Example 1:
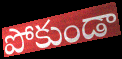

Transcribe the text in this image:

పోకుండా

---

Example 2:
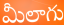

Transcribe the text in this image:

మీలాగు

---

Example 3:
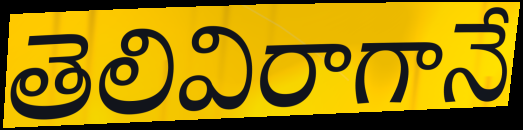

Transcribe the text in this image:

తెలివిరాగానే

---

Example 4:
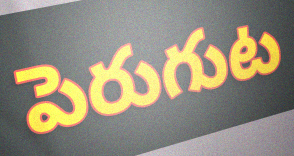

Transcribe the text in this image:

పెరుగుట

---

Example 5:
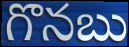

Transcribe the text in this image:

గొనబు